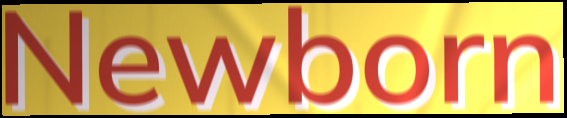
Newborn